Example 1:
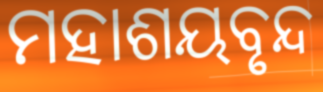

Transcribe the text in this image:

ମହାଶୟବୃନ୍ଦ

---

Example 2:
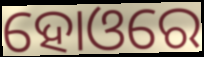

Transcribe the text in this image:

ହୋଓରେ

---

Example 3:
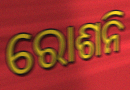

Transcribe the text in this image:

ରୋଶନି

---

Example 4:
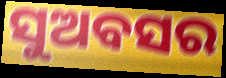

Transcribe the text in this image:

ସୁଅବସର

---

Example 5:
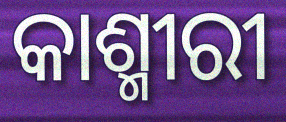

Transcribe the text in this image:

କାଶ୍ମୀରୀ